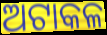
ଅଟାକଳ